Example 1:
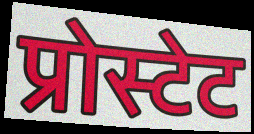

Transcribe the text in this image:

प्रोस्टेट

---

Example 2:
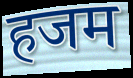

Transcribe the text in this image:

हजम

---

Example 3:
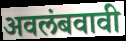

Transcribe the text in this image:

अवलंबवावी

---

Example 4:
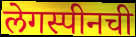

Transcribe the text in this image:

लेगस्पीनची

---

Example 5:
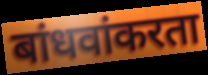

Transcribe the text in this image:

बांधवांकरता